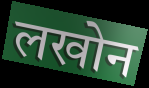
लखोन